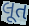
લૂત